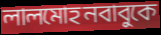
লালমোহনবাবুকে